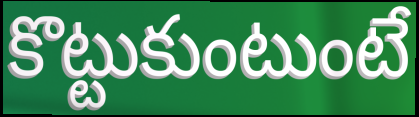
కొట్టుకుంటుంటే